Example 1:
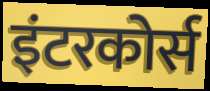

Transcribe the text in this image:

इंटरकोर्स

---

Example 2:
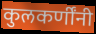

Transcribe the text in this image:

कुलकर्णींनी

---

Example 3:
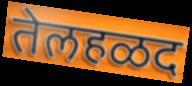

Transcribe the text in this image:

तेलहळद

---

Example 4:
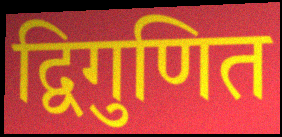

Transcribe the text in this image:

द्विगुणित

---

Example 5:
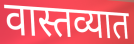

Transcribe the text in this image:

वास्तव्यात